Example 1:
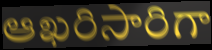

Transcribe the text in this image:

ఆఖరిసారిగా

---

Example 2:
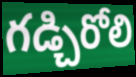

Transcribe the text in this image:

గడ్చిరోలి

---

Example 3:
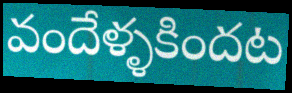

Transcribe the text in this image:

వందేళ్ళకిందట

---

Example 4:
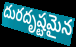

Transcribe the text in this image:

దురదృష్టమైన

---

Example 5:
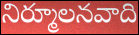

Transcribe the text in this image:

నిర్మూలనవాది